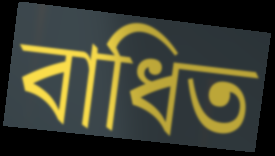
বাধিত